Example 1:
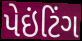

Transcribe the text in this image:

પેઇંટિંગ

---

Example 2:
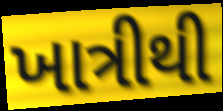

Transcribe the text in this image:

ખાત્રીથી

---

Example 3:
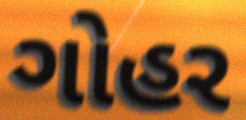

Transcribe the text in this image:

ગોહર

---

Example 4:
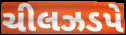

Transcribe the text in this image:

ચીલઝડપે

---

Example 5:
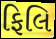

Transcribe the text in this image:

ફિલિ